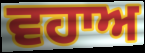
ਵਹਾਅ